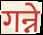
गन्ने